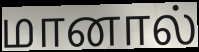
மானால்